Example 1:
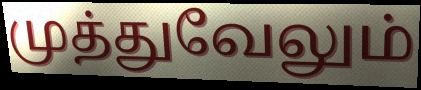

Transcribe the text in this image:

முத்துவேலும்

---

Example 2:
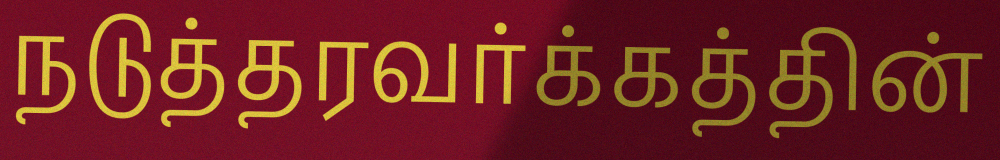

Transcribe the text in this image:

நடுத்தரவர்க்கத்தின்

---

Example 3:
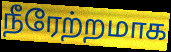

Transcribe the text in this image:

நீரேற்றமாக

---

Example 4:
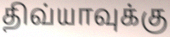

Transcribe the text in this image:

திவ்யாவுக்கு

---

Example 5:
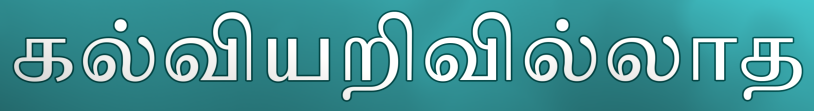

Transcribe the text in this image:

கல்வியறிவில்லாத